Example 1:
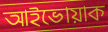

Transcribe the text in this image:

আইভোয়াক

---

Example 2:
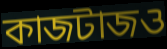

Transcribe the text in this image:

কাজটাজও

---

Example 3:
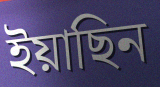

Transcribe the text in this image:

ইয়াছিন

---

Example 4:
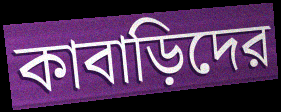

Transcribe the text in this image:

কাবাড়িদের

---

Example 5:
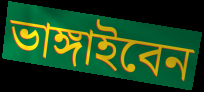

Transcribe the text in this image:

ভাঙ্গাইবেন